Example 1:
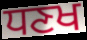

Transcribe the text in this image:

ਧਣਖ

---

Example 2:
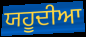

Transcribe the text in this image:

ਯਹੂਦੀਆ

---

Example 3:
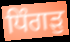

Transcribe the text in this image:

ਧਿੰਗੜੁ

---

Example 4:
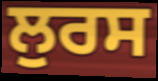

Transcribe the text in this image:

ਲੁਰਸ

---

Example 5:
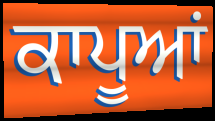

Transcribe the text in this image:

ਕਾਪੂਆਂ